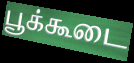
பூக்கூடை